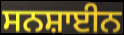
ਸਨਸ਼ਾਈਨ